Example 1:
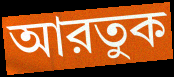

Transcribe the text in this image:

আরতুক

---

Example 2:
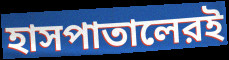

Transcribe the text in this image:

হাসপাতালেরই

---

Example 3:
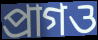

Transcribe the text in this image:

প্রাগও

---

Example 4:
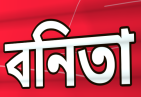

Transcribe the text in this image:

বনিতা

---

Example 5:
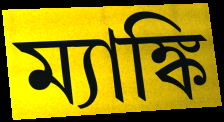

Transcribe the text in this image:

ম্যাঙ্কি